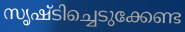
സൃഷ്ടിച്ചെടുക്കേണ്ട